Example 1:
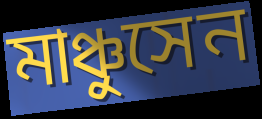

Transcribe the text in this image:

মাঞ্চুসেন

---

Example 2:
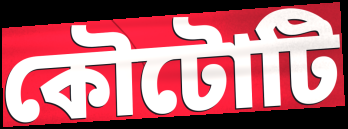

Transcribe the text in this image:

কৌটোটি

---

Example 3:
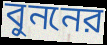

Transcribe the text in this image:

বুননের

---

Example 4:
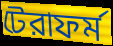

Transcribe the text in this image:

টেরাফর্ম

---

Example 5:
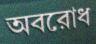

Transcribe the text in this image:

অবরোধ